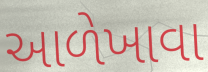
આળેખાવા